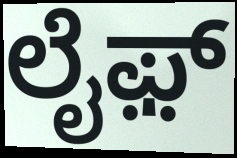
ಲೈಫ಼್